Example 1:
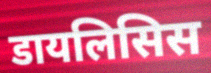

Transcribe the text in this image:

डायलिसिस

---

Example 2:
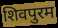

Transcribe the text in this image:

शिवपुरम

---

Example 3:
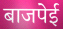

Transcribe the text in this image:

बाजपेई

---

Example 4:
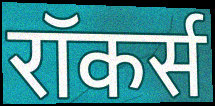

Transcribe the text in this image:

रॉकर्स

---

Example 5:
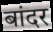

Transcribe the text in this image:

बांदर